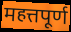
महत्तपूर्ण